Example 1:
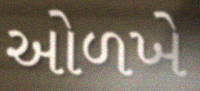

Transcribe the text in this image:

ઓળખે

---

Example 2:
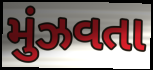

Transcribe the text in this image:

મુંઝવતા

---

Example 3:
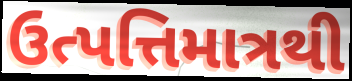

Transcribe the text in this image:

ઉત્પત્તિમાત્રથી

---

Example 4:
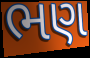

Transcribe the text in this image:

ભણ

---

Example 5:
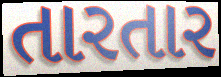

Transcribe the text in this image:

તારતાર